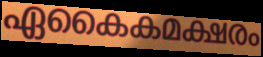
ഏകൈകമക്ഷരം